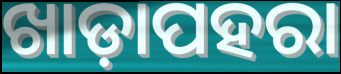
ଖାଡ଼ାପହରା